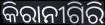
କିରାନୀଗିରି